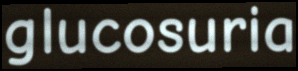
glucosuria